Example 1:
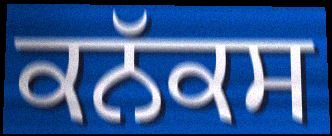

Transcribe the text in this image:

ਕਨੱਕਸ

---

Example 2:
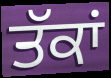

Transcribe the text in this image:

ਤੱਕਾਂ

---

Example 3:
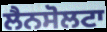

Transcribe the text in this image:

ਲੈਨਸੋਲਟਾ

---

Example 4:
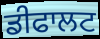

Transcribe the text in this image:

ਡੀਫਾਲਟ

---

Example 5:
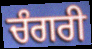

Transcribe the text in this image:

ਚੰਗਰੀ